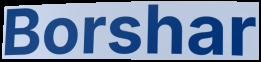
Borshar